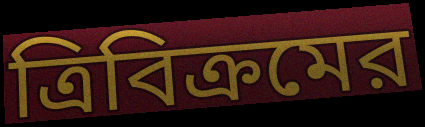
ত্রিবিক্রমের